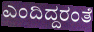
ಎಂದಿದ್ದರಂತೆ